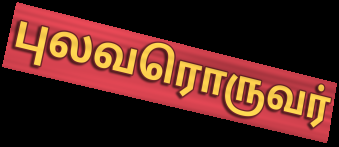
புலவரொருவர்